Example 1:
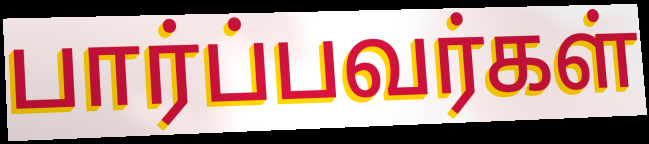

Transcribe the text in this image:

பார்ப்பவர்கள்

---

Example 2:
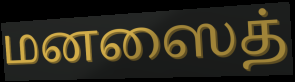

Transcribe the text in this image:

மனஸைத்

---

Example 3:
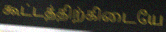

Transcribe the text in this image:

கூட்டத்திற்கிடையே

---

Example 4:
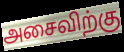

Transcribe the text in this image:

அசைவிற்கு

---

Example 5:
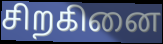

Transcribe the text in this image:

சிறகினை